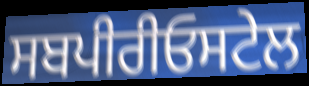
ਸਬਪੀਰੀਓਸਟੇਲ